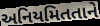
અનિયમિતતાને